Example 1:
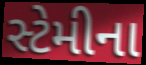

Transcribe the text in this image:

સ્ટેમીના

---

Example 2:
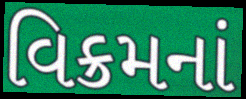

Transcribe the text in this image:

વિક્રમનાં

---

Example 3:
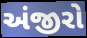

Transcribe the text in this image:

અંજીરો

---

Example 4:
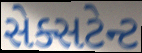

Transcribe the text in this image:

સેક્સટેન્ટ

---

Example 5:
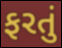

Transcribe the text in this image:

ફરતું